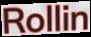
Rollin